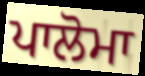
ਪਾਲੋਮਾ